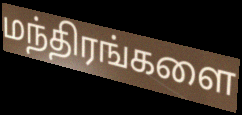
மந்திரங்களை